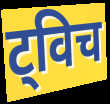
ट्विच